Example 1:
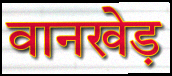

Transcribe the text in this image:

वानखेड़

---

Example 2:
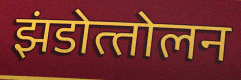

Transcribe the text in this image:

झंडोत्‍तोलन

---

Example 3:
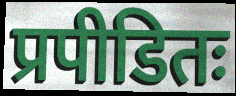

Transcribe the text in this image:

प्रपीडितः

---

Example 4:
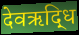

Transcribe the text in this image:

देवऋद्धि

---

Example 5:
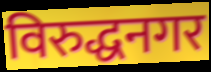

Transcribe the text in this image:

विरुद्धनगर